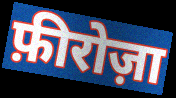
फ़ीरोज़ा